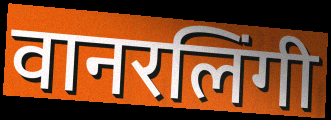
वानरलिंगी